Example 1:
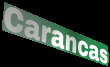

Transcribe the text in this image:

Carancas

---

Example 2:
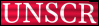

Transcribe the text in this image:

UNSCR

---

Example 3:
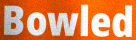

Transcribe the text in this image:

Bowled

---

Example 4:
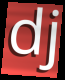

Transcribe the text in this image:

dj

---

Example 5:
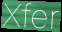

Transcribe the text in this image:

Xfer